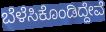
ಬೆಳೆಸಿಕೊಂಡಿದ್ದೇವೆ